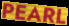
PEARL